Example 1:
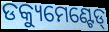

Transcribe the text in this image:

ଡକ୍ୟୁମେଣ୍ଟେଡ୍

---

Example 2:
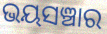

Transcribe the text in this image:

ଭୟସଞ୍ଚାର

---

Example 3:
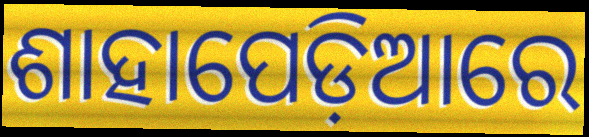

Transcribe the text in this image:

ଶାହାପେଡ଼ିଆରେ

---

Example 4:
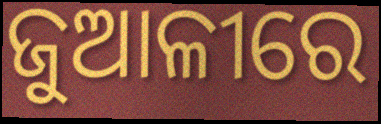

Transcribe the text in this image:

ଜୁଆଳୀରେ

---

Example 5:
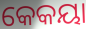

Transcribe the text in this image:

କେକୟା